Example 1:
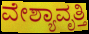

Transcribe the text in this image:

ವೇಶ್ಯಾವೃತ್ತಿ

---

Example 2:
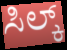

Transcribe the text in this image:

ಸಿಲ್ಕ್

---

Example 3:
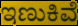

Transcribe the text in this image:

ಇಣುಕಿವೆ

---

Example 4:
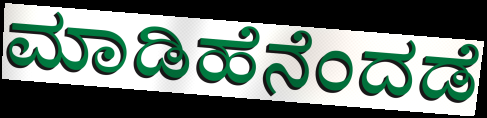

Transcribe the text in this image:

ಮಾಡಿಹೆನೆಂದಡೆ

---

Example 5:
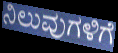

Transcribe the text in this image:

ನಿಲುವುಗಳಿಗೆ